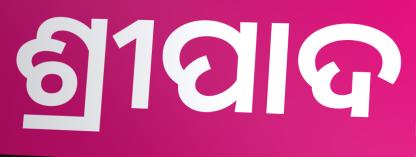
ଶ୍ରୀପାଦ